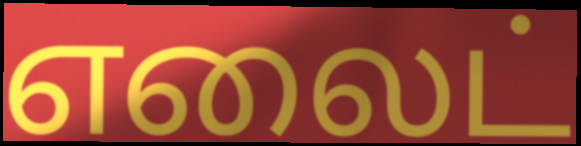
எலைட்